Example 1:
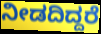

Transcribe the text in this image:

ನೀಡದಿದ್ದರೆ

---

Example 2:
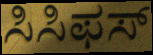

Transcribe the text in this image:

ಸಿಸಿಫಸ್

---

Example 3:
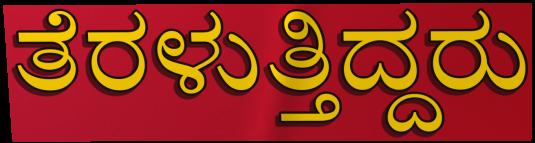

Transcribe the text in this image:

ತೆರಳುತ್ತಿದ್ದರು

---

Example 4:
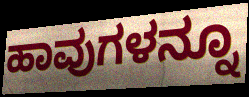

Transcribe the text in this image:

ಹಾವುಗಳನ್ನೂ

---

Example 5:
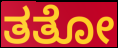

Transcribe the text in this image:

ತತೋ